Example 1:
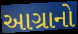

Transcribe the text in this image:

આગ્રાનો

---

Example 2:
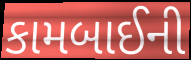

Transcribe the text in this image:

કામબાઈની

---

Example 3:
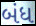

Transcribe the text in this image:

બંધ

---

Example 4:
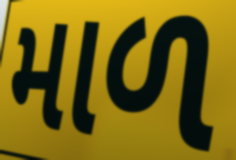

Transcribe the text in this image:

માળ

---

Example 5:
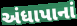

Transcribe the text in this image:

અંધાપાનાં